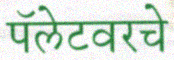
पॅलेटवरचे